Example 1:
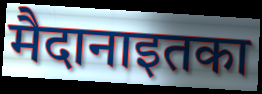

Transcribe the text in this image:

मैदानाइतका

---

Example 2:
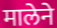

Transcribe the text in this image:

मालेने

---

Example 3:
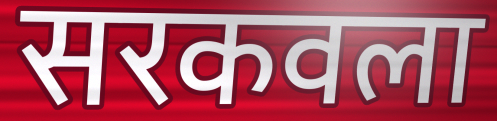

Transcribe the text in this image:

सरकवला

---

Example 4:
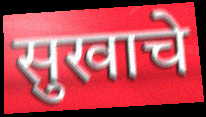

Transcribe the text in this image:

सुखाचे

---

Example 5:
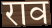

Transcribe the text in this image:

राव